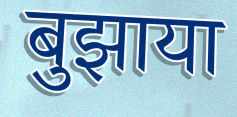
बुझाया